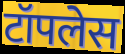
टॉपलेस